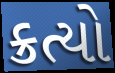
ક્રત્યો